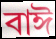
বাঈ